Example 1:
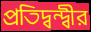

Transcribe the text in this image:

প্রতিদ্বন্দ্বীর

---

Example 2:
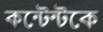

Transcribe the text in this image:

কন্টেন্টকে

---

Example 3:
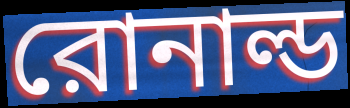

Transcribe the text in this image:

রোনাল্ড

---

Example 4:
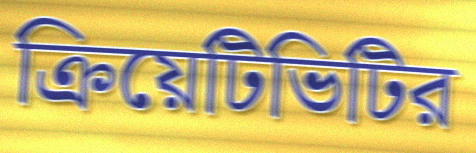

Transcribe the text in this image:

ক্রিয়েটিভিটির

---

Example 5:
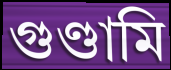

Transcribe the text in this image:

গুণ্ডামি